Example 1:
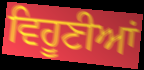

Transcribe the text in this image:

ਵਿਹੂਣੀਆਂ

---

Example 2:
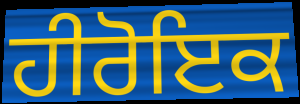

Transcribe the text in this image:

ਹੀਰੋਇਕ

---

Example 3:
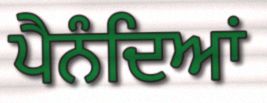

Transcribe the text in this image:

ਪੈਨੰਦਿਆਂ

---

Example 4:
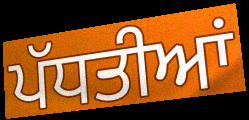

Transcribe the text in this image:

ਪੱਧਤੀਆਂ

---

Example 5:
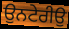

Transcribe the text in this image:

ਉਨਟੇਰੀਉ